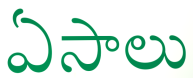
ఏసాలు